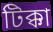
টিক্কা